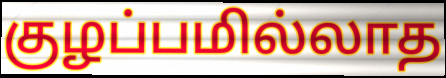
குழப்பமில்லாத